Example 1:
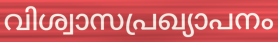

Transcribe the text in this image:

വിശ്വാസപ്രഖ്യാപനം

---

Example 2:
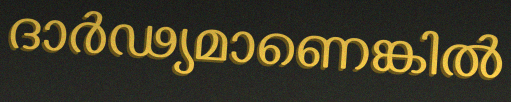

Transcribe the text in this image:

ദാർഢ്യമാണെങ്കിൽ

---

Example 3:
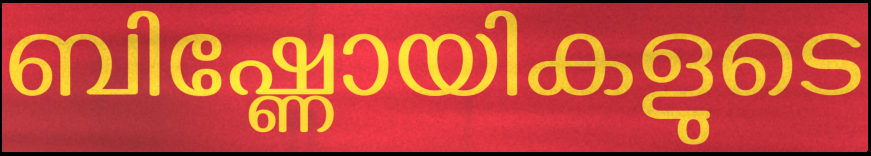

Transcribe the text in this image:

ബിഷ്ണോയികളുടെ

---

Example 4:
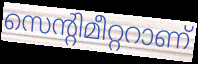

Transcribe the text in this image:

സെന്റിമീറ്ററാണ്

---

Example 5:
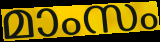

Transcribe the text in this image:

മാംസം